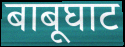
बाबूघाट